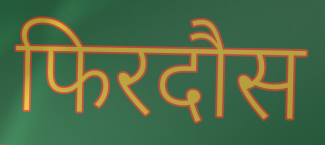
फिरदौस